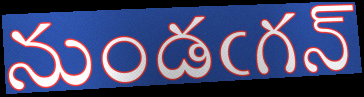
నుండఁగన్